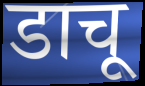
डाचू